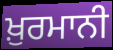
ਖ਼ੁਰਮਾਨੀ